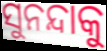
ସୁନନ୍ଦାକୁ